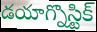
డయాగ్నొస్టిక్